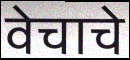
वेचाचे